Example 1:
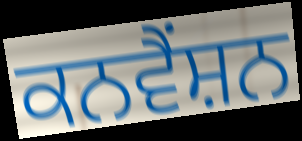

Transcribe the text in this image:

ਕਨਵੈੰਸ਼ਨ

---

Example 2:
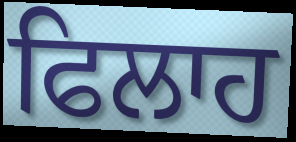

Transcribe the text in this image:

ਫਿਲਾਹ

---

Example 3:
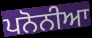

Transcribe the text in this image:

ਪਨੋਨੀਆ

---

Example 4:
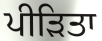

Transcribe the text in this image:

ਪੀੜਿਤਾ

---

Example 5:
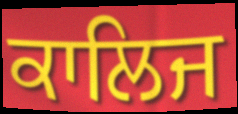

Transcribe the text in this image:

ਕਾਲਿਜ